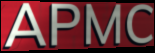
APMC